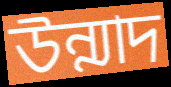
উন্মাদ